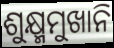
ଶୁକ୍ଷ୍ମମୁଖାନି